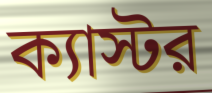
ক্যাস্টর